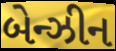
બેન્ઝીન